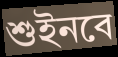
শুইনবে